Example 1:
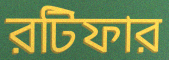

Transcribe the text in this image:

রটিফার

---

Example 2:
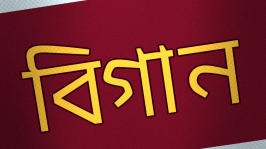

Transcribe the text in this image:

বিগান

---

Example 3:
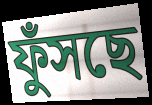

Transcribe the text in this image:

ফুঁসছে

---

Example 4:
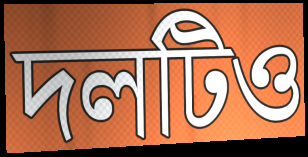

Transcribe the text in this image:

দলটিও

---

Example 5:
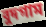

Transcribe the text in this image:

বুদগাম